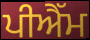
ਪੀਐੱਮ